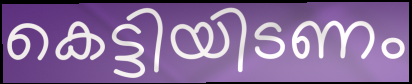
കെട്ടിയിടണം